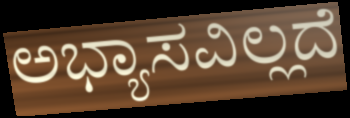
ಅಭ್ಯಾಸವಿಲ್ಲದೆ